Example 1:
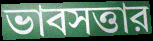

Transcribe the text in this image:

ভাবসত্তার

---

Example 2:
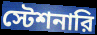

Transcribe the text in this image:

স্টেশনারি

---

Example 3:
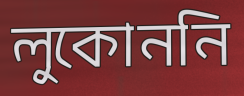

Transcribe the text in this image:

লুকোননি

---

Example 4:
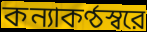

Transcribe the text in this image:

কন্যাকণ্ঠস্বরে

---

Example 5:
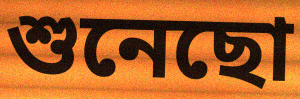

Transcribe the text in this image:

শুনেছো